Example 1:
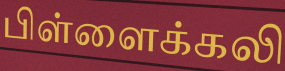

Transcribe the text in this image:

பிள்ளைக்கலி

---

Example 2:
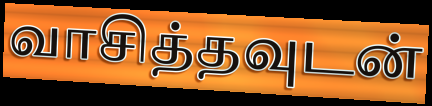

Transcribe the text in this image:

வாசித்தவுடன்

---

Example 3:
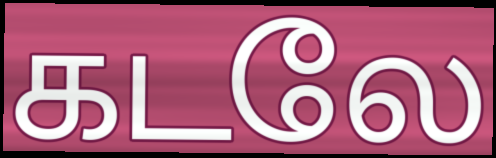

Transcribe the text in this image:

கடலே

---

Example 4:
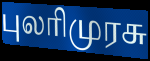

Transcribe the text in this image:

புலரிமுரசு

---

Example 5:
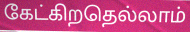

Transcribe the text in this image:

கேட்கிறதெல்லாம்